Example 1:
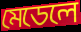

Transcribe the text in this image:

মেডেলে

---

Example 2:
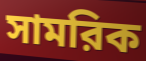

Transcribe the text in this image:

সামরিক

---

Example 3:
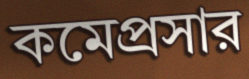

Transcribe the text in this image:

কমেপ্রসার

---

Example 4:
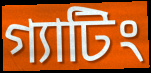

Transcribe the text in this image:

গ্যাটিং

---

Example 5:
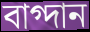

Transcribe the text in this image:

বাগ্দান